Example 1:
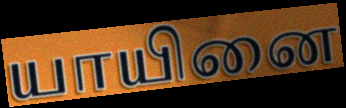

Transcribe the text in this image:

யாயினை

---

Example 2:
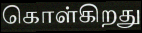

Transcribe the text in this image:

கொள்கிறது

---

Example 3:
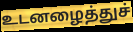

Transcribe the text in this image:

உடனழைத்துச்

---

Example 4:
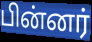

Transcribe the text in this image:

பின்னர்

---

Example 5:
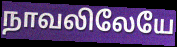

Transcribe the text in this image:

நாவலிலேயே